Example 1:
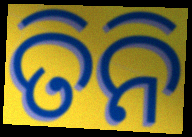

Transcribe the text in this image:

ତିନି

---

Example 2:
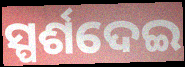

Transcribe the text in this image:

ସ୍ପର୍ଶଦେଇ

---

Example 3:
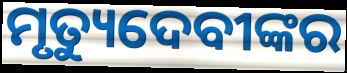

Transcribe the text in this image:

ମୃତ୍ୟୁଦେବୀଙ୍କର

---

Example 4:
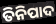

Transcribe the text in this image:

ତିନିପାଦ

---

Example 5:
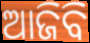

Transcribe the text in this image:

ଆଜିବି